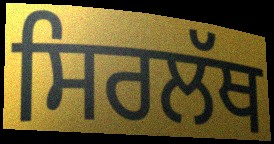
ਸਿਰਲੱਥ